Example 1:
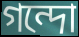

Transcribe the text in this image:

গন্দো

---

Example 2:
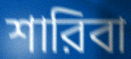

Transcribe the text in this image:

শারিবা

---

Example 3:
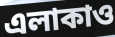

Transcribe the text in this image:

এলাকাও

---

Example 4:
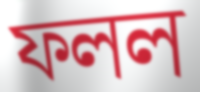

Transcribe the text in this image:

ফলল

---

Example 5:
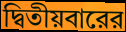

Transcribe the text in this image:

দ্বিতীয়বারের